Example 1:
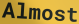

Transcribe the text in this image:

Almost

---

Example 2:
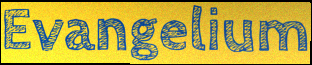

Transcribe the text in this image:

Evangelium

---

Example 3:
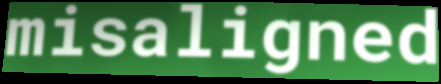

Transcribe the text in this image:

misaligned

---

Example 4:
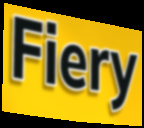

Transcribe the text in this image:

Fiery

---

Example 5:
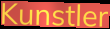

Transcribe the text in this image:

Kunstler